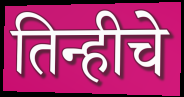
तिन्हीचे